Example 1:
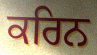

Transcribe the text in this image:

ਕਰਿਨ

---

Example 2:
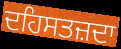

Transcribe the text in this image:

ਦਹਿਸਤਜ਼ਦਾ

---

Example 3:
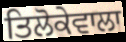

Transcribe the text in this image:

ਤਿਲੋਕੇਵਾਲਾ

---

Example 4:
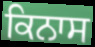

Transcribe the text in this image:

ਕਿਨਾਸ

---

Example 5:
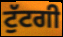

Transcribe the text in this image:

ਟੁੱਟਗੀ